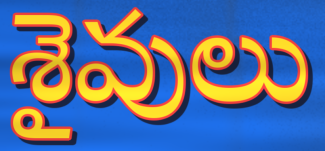
శైవులు